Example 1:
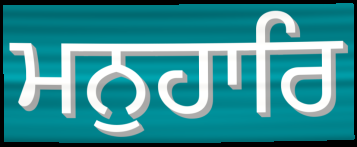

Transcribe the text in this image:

ਮਨੁਹਾਰਿ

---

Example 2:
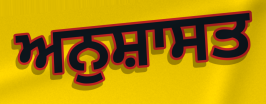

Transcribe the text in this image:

ਅਨੁਸ਼ਾਸਤ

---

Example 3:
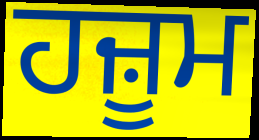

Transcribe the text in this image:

ਹਜ਼ੂਮ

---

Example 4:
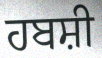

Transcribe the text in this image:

ਹਬਸ਼ੀ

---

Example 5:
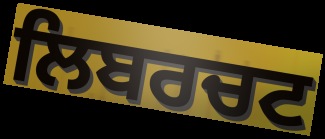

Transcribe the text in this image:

ਲਿਬਰਚਟ